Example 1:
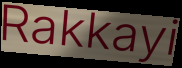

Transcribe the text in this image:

Rakkayi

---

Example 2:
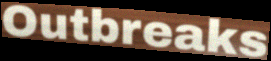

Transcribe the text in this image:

Outbreaks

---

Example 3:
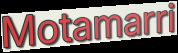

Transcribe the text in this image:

Motamarri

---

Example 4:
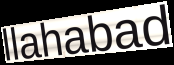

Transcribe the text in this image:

llahabad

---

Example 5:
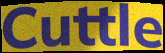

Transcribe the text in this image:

Cuttle